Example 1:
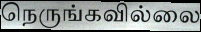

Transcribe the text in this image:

நெருங்கவில்லை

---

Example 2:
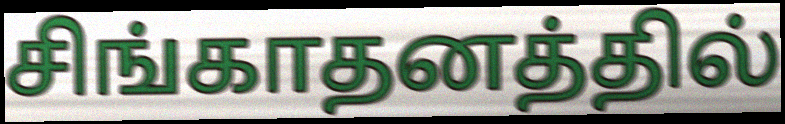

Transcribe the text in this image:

சிங்காதனத்தில்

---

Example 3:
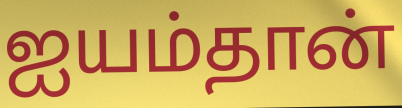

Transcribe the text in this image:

ஐயம்தான்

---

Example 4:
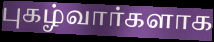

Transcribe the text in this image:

புகழ்வார்களாக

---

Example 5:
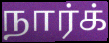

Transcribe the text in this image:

நார்க்